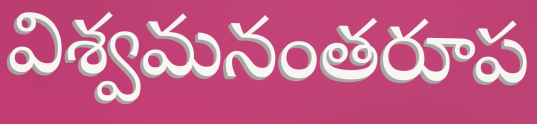
విశ్వమనంతరూప